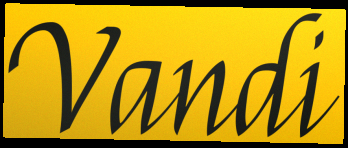
Vandi